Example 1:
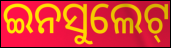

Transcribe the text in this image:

ଇନସୁଲେଟ୍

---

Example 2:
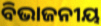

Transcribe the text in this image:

ବିଭାଜନୀୟ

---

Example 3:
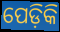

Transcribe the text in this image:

ପେଡ଼ିକି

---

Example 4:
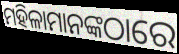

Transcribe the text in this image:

ମହିଳାମାନଙ୍କଠାରେ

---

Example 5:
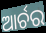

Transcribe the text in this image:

ଆର୍ଚର